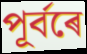
পূৰ্বৰে